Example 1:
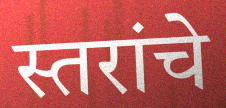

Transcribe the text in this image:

स्तरांचे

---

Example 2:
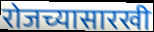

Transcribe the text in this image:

रोजच्यासारखी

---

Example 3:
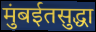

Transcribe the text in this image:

मुंबईतसुद्धा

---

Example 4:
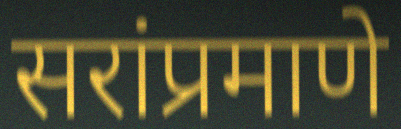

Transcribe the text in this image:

सरांप्रमाणे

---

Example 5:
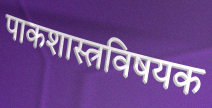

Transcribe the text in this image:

पाकशास्त्रविषयक